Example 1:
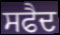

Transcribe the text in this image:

ਸਫੈਦ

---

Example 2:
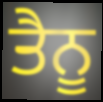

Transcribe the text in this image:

ਤੈਨੂ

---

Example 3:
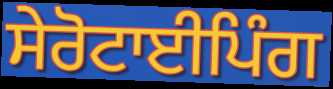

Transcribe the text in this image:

ਸੇਰੋਟਾਈਪਿੰਗ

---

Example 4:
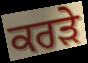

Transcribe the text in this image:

ਕਰੜੇ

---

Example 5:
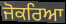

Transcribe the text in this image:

ਜੋਕਰਿਆ